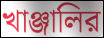
খাঞ্জালির